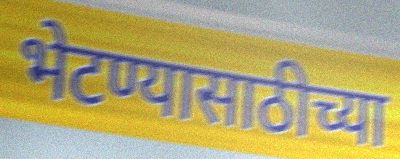
भेटण्यासाठीच्या